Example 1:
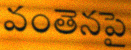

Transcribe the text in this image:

వంతెనపై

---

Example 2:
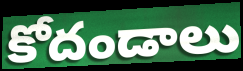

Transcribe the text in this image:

కోదండాలు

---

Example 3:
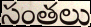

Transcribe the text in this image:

సంతలు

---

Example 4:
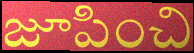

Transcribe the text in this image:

జూపించి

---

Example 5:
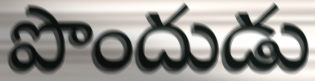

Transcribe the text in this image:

పొందుడు